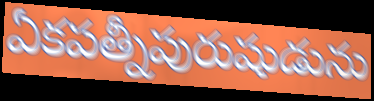
ఏకపత్నీపురుషుడును